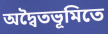
অদ্বৈতভূমিতে